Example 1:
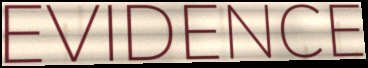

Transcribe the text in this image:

EVIDENCE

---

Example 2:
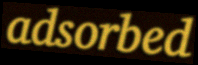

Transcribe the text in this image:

adsorbed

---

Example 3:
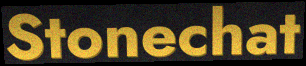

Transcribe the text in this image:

Stonechat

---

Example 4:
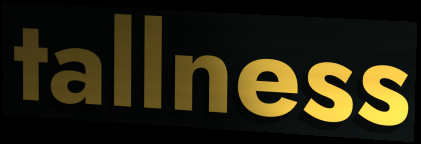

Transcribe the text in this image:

tallness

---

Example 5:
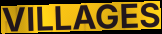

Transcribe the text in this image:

VILLAGES